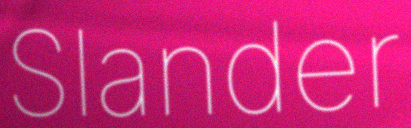
Slander